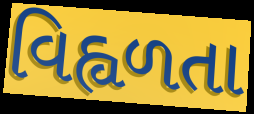
વિહ્વળતા